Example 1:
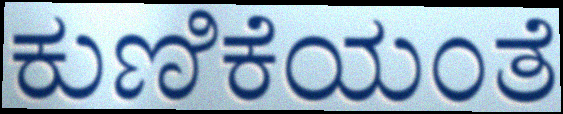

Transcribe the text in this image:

ಕುಣಿಕೆಯಂತೆ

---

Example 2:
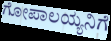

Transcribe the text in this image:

ಗೋಪಾಲಯ್ಯನಿಗೆ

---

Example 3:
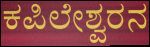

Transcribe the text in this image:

ಕಪಿಲೇಶ್ವರನ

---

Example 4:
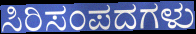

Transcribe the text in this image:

ಸಿರಿಸಂಪದಗಳು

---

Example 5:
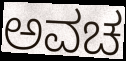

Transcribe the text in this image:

ಅವಚ